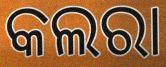
କଲରା